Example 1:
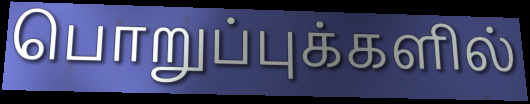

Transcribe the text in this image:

பொறுப்புக்களில்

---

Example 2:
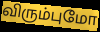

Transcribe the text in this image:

விரும்புமோ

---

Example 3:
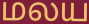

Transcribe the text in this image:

மலய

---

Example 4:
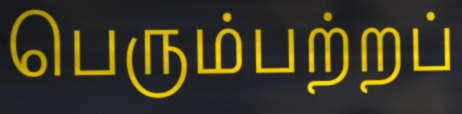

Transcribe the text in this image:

பெரும்பற்றப்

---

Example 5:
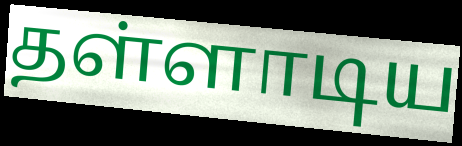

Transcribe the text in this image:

தள்ளாடிய